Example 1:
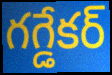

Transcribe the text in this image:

గగ్డేకర్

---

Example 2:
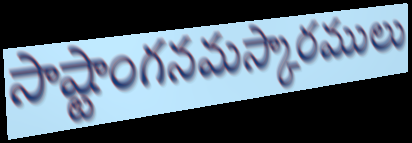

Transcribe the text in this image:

సాష్టాంగనమస్కారములు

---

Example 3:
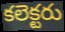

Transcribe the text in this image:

కలెక్టరు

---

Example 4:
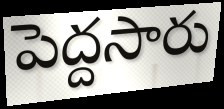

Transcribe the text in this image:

పెద్దసారు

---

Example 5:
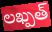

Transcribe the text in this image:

లఖ్పత్